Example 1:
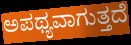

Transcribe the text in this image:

ಅಪಥ್ಯವಾಗುತ್ತದೆ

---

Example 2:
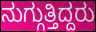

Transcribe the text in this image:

ನುಗ್ಗುತ್ತಿದ್ದರು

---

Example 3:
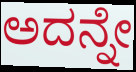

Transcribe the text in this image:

ಅದನ್ನೇ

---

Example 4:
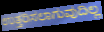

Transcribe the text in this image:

ಉತ್ತರಿಸಲಾಗುವುದಿಲ್ಲ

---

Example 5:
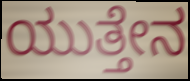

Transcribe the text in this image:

ಯುತ್ತೇನ